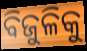
ବିଜୁଳିକୁ